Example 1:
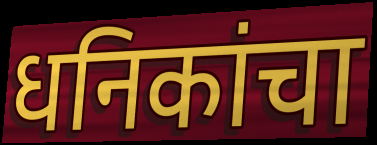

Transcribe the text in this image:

धनिकांचा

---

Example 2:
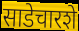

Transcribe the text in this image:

साडेचारशे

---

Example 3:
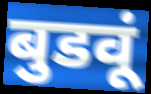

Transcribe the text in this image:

बुडवूं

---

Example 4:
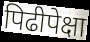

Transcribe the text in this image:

पिढीपेक्षा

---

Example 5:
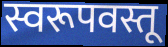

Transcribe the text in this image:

स्वरूपवस्तू